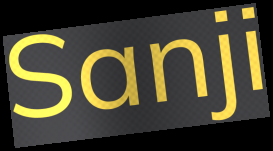
Sanji